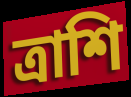
ত্রাশি